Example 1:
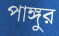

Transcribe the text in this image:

পাঙ্গুর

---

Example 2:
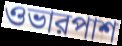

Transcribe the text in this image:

ওভারপাশ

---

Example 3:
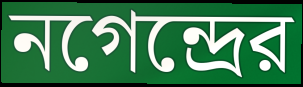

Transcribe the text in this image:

নগেন্দ্রের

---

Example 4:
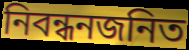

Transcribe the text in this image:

নিবন্ধনজনিত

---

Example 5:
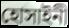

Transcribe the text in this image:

হোসাইনী